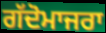
ਗੱਦੋਮਾਜਰਾ